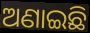
ଅଣାଇଛି